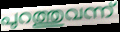
പുറത്തുവന്ന്